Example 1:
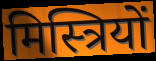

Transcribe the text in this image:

मिस्त्रियों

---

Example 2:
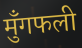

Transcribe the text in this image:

मुँगफली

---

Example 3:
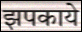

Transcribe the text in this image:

झपकाये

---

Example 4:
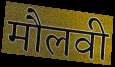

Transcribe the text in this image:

मौलवी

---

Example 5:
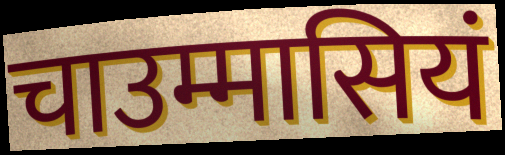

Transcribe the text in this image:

चाउम्मासियं